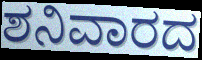
ಶನಿವಾರದ